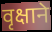
वृक्षाने